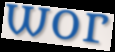
wor